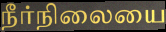
நீர்நிலையை